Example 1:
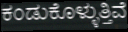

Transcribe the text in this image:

ಕಂಡುಕೊಳ್ಳುತ್ತಿವೆ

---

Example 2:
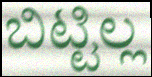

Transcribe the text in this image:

ಬಿಟ್ಟಿಲ್ಲ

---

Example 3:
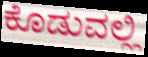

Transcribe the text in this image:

ಕೊಡುವಲ್ಲಿ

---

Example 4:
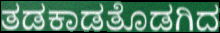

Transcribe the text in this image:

ತಡಕಾಡತೊಡಗಿದ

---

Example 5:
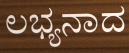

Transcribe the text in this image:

ಲಭ್ಯನಾದ